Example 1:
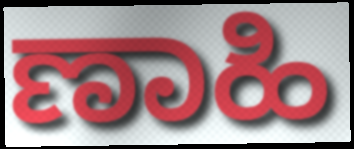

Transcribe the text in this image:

ಣಾಹಿ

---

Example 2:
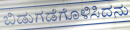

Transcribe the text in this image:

ಬಿಡುಗಡೆಗೊಳಿಸಿದನು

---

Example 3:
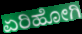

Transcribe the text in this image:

ಏರಿಹೋಗಿ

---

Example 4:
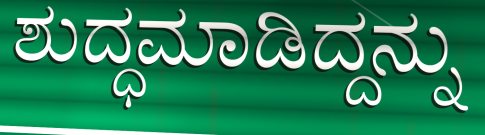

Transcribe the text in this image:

ಶುದ್ಧಮಾಡಿದ್ದನ್ನು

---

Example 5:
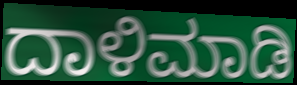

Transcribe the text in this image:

ದಾಳಿಮಾಡಿ